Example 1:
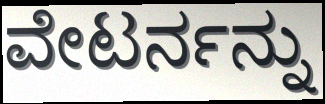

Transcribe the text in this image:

ವೇಟರ್ನನ್ನು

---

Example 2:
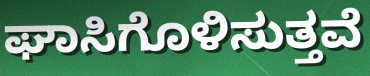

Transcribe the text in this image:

ಘಾಸಿಗೊಳಿಸುತ್ತವೆ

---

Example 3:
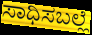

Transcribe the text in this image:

ಸಾಧಿಸಬಲ್ಲೆ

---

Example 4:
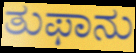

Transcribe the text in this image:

ತುಫಾನು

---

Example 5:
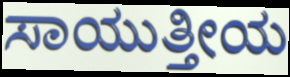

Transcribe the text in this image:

ಸಾಯುತ್ತೀಯ